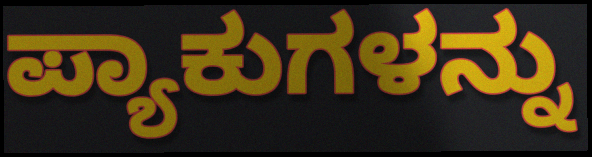
ಪ್ಯಾಕುಗಳನ್ನು